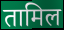
तामिल